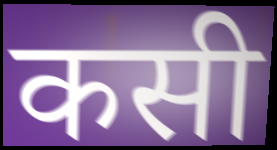
कसी